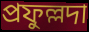
প্রফুল্লদা